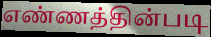
எண்ணத்தின்படி